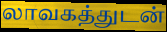
லாவகத்துடன்